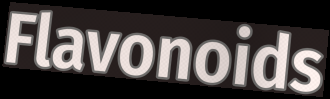
Flavonoids